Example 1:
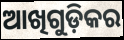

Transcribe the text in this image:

ଆଖିଗୁଡ଼ିକର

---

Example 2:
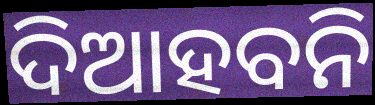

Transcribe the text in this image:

ଦିଆହବନି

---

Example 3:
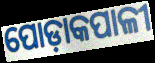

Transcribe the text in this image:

ପୋଡ଼ାକପାଳୀ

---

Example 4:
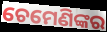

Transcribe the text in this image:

ଚେମେଣିଙ୍କର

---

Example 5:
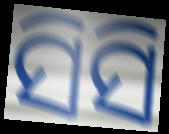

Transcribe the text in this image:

ସିସି